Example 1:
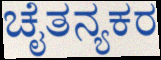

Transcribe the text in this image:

ಚೈತನ್ಯಕರ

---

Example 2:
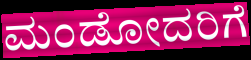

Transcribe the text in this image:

ಮಂಡೋದರಿಗೆ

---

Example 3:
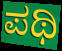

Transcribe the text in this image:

ಪಥಿ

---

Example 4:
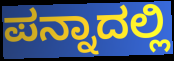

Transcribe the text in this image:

ಪನ್ನಾದಲ್ಲಿ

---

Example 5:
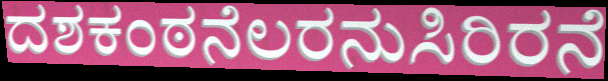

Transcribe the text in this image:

ದಶಕಂಠನೆಲರನುಸಿರಿರನೆ